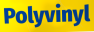
Polyvinyl